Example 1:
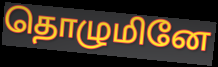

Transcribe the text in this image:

தொழுமினே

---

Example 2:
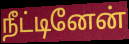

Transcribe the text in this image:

நீட்டினேன்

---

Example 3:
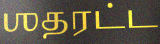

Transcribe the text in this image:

ஶதரட்ட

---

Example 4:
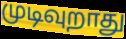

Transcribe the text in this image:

முடிவுறாது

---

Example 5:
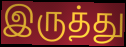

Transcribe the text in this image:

இருத்து